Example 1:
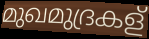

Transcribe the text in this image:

മുഖമുദ്രകള്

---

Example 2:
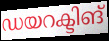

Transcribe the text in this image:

ഡയറക്ടിങ്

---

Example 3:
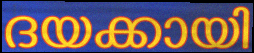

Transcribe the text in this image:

ദയക്കായി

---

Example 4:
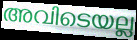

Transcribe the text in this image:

അവിടെയല്ല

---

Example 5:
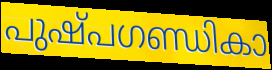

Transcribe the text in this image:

പുഷ്പഗണ്ഡികാ